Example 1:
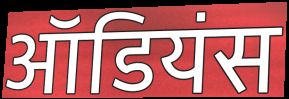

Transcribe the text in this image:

ऑडियंस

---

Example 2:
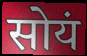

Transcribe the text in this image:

सोयं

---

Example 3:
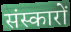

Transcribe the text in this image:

संस्कारों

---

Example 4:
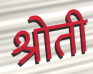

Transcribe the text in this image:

श्रोती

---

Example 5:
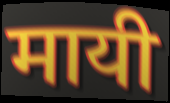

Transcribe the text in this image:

मायी